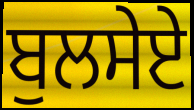
ਬੁਲਸੇਏ